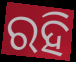
ରହି